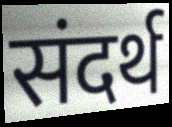
संदर्थ